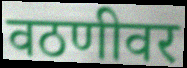
वठणीवर